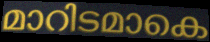
മാറിടമാകെ